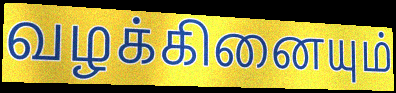
வழக்கினையும்